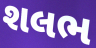
શલભ